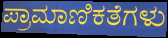
ಪ್ರಾಮಾಣಿಕತೆಗಳು